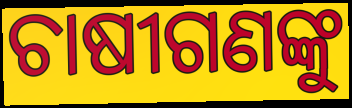
ଚାଷୀଗଣଙ୍କୁ